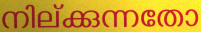
നില്ക്കുന്നതോ